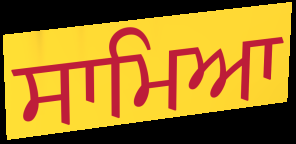
ਸਾਮਿਆ